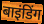
बाइंडिंग